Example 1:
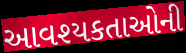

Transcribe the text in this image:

આવશ્યકતાઓની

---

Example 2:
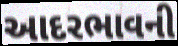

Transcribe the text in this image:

આદરભાવની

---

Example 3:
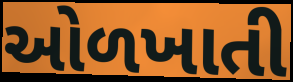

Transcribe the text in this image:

ઓળખાતી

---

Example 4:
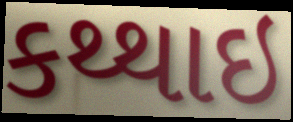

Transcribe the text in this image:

કથ્થાઇ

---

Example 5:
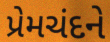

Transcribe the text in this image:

પ્રેમચંદને